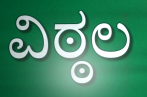
ವಿಠ್ಠಲ